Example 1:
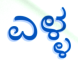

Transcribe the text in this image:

ಎಳ್ಳ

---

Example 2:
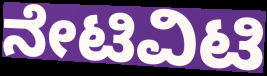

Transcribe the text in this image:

ನೇಟಿವಿಟಿ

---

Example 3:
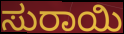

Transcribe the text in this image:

ಸುರಾಯಿ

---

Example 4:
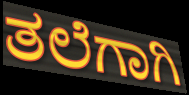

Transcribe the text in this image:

ತಲೆಗಾಗಿ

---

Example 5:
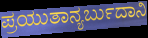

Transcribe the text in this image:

ಪ್ರಯುತಾನ್ಯರ್ಬುದಾನಿ